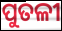
ପୁତଳୀ